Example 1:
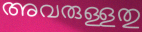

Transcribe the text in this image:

അവരുള്ളതു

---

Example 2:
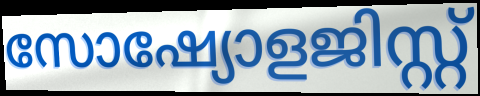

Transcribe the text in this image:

സോഷ്യോളജിസ്റ്റ്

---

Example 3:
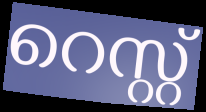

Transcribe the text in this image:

റെസ്റ്റ്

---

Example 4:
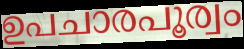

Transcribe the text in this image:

ഉപചാരപൂര്വം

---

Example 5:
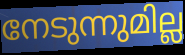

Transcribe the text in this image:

നേടുന്നുമില്ല